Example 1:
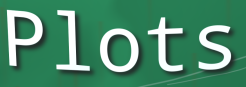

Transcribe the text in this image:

Plots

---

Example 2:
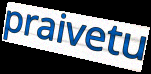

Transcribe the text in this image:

praivetu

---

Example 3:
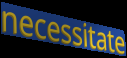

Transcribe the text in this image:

necessitate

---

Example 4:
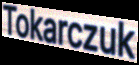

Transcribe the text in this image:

Tokarczuk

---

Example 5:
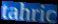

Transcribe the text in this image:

tahric